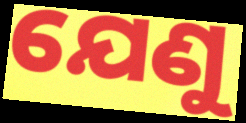
ଯେଣୁ